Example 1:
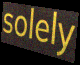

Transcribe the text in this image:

solely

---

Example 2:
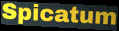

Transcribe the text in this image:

Spicatum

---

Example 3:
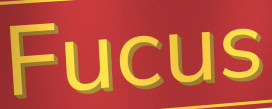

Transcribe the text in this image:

Fucus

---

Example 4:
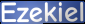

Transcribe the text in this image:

Ezekiel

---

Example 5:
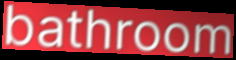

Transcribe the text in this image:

bathroom